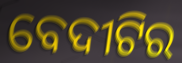
ବେଦୀଟିର